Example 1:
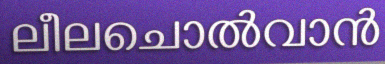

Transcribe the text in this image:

ലീലചൊൽവാൻ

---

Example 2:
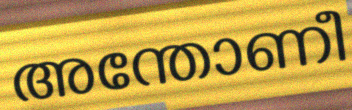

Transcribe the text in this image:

അന്തോണീ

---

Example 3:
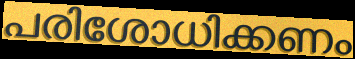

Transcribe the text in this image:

പരിശോധിക്കണം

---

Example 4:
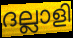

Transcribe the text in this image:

ദല്ലാളി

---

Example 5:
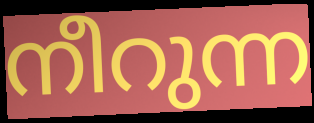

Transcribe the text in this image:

നീറുന്ന